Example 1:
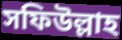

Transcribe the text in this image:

সফিউল্লাহ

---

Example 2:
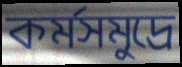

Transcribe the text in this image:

কর্মসমুদ্রে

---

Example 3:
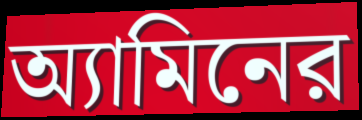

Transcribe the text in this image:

অ্যামিনের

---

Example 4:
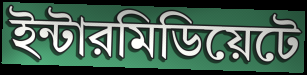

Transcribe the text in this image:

ইন্টারমিডিয়েটে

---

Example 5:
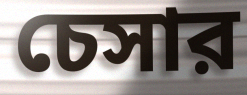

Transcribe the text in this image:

চেসার